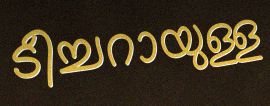
ടീച്ചറായുള്ള